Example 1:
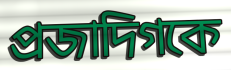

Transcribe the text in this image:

প্রজাদিগকে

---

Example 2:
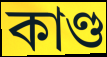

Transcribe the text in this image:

কাণ্ড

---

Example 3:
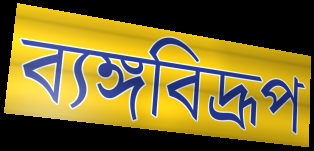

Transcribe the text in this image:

ব্যঙ্গবিদ্রূপ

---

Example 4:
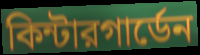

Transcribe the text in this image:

কিন্টারগার্ডেন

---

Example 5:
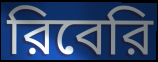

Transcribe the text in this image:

রিবেরি